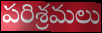
పరిశ్రమలు